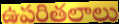
ఉపరితలాలు